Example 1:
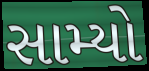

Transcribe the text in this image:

સામ્યો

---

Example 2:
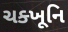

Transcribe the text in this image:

ચક્ખૂનિ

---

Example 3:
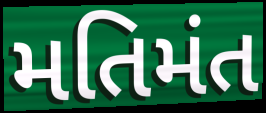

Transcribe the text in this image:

મતિમંત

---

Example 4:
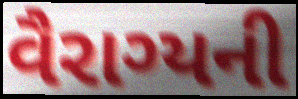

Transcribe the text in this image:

વૈરાગ્યની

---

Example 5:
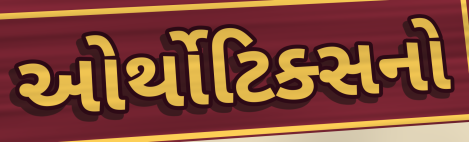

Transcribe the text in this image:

ઓર્થોટિક્સનો